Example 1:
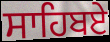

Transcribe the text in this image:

ਸਾਹਿਬਏ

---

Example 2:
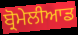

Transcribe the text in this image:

ਬ੍ਰੋਮੇਲੀਆਡ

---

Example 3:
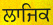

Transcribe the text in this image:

ਲਾਜਿਕ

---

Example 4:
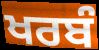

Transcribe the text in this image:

ਖਰਬੰ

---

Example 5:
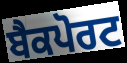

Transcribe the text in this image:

ਬੈਕਪੋਰਟ